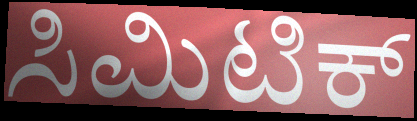
ಸಿಮಿಟಿಕ್